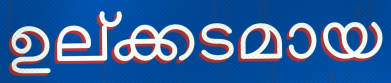
ഉല്ക്കടമായ